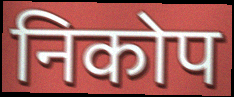
निकोप